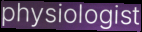
physiologist